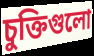
চুক্তিগুলো